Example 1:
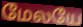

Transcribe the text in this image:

மேலயே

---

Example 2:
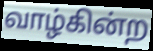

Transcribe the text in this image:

வாழ்கின்ற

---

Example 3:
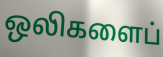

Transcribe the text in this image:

ஒலிகளைப்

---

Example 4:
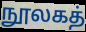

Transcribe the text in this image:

நூலகத்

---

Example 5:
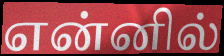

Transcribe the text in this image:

என்னில்